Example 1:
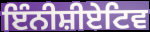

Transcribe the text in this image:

ਇੰਨੀਸ਼ੀਏਟਿਵ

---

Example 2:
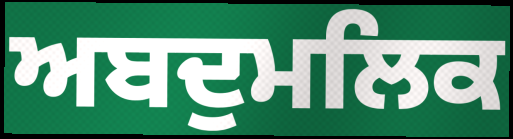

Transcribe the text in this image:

ਅਬਦੁਮਲਿਕ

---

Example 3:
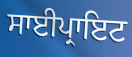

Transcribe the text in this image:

ਸਾਈਪ੍ਰਾਇਟ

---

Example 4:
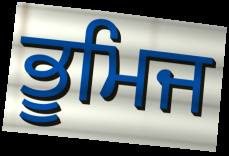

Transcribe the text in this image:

ਭੂਮਿਜ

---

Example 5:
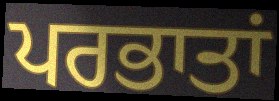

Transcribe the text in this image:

ਪਰਭਾਤਾਂ